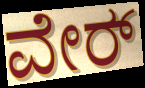
ವೇರ್‍